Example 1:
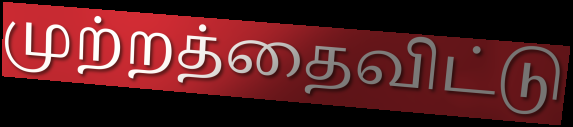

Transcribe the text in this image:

முற்றத்தைவிட்டு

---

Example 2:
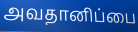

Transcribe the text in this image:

அவதானிப்பை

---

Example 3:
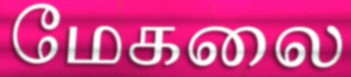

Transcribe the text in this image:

மேகலை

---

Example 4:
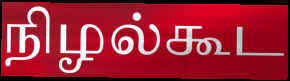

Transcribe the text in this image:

நிழல்கூட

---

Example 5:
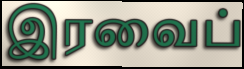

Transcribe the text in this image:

இரவைப்